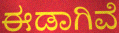
ಈಡಾಗಿವೆ